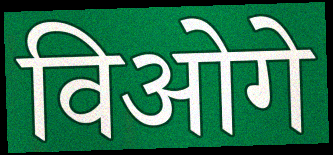
विओगे